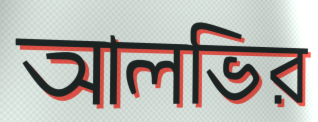
আলভির